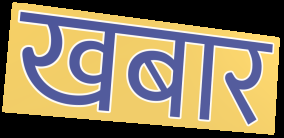
खबार